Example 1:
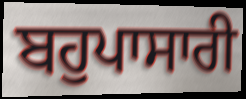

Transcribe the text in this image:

ਬਹੁਪਾਸਾਰੀ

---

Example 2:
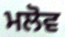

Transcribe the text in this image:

ਮਲੋਵ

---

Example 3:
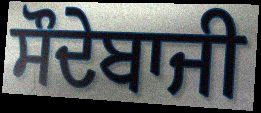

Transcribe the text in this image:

ਸੌਦੇਬਾਜੀ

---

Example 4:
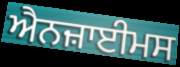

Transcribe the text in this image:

ਐਨਜ਼ਾਈਮਸ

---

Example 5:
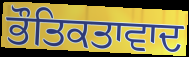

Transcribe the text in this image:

ਭੌਤਿਕਤਾਵਾਦ